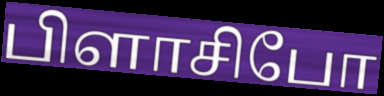
பிளாசிபோ